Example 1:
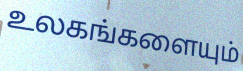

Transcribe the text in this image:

உலகங்களையும்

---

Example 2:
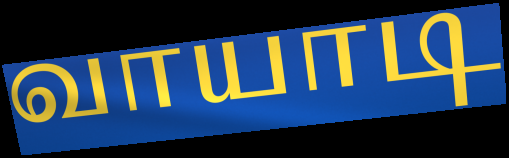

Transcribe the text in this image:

வாயாடி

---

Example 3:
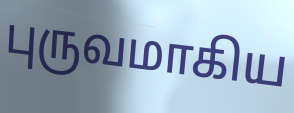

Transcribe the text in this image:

புருவமாகிய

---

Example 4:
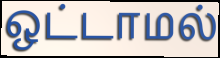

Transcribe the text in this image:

ஒட்டாமல்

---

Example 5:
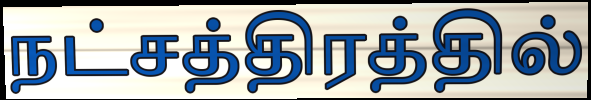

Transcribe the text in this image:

நட்சத்திரத்தில்